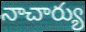
నాచార్యు